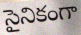
సైనికంగా